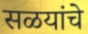
सळयांचे